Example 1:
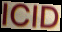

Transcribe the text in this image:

ICID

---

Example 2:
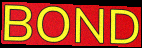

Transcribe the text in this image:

BOND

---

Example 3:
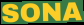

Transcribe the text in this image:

SONA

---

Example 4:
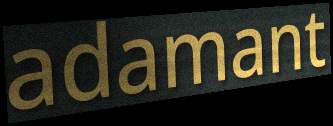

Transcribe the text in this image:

adamant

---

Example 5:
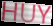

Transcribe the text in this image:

HUY